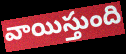
వాయిస్తుంది